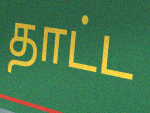
தாட்ட